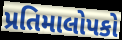
પ્રતિમાલોપકો